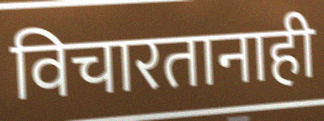
विचारतानाही